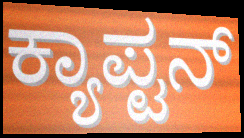
ಕ್ಯಾಪ್ಟನ್